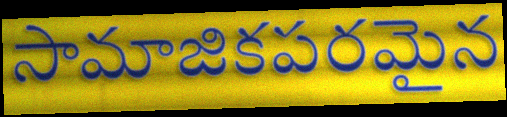
సామాజికపరమైన